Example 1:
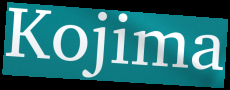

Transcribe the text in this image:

Kojima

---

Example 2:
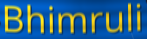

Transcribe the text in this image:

Bhimruli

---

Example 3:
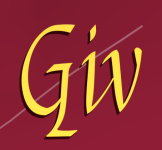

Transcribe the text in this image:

Giv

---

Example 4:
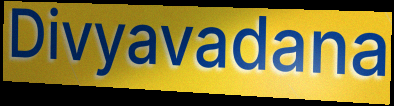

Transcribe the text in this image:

Divyavadana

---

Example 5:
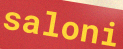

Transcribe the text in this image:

saloni